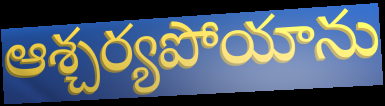
ఆశ్చర్యపోయాను